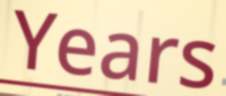
Years